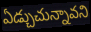
ఏడ్చుచున్నావని